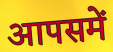
आपसमें